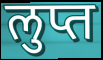
लुप्त